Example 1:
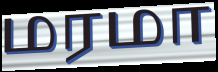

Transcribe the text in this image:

மரமா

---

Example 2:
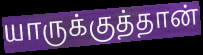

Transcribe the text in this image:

யாருக்குத்தான்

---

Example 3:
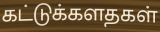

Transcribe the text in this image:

கட்டுக்களதகள்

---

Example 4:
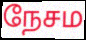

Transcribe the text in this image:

நேசம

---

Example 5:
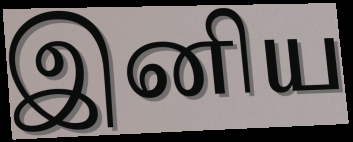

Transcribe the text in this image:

இனிய